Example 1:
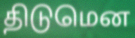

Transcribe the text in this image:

திடுமென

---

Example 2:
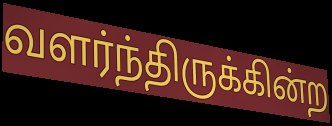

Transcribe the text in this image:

வளர்ந்திருக்கின்ற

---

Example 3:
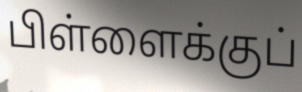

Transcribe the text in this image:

பிள்ளைக்குப்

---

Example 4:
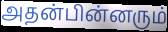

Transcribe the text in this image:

அதன்பின்னரும்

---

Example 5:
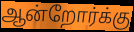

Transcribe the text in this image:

ஆன்றோர்க்கு